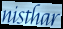
nisthar